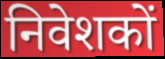
निवेशकों